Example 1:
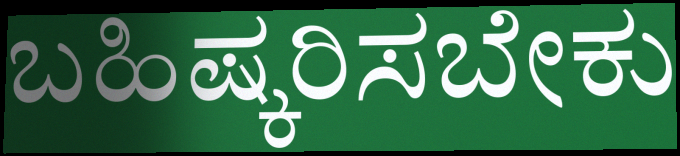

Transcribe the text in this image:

ಬಹಿಷ್ಕರಿಸಬೇಕು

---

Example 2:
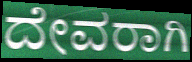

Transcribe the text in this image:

ದೇವರಾಗಿ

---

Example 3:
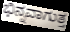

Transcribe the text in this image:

ಭಿನ್ನವಾಗುತ್ತ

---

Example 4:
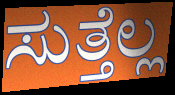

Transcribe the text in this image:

ಸುತ್ತೆಲ್ಲ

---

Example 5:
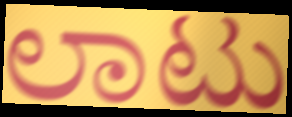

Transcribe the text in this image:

ಲಾಟು